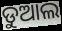
ଡୁଆଲ